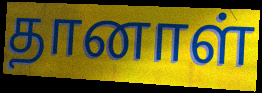
தானாள்